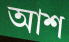
আশ